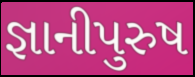
જ્ઞાનીપુરુષ